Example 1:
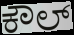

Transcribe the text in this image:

ಕೌಲ್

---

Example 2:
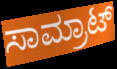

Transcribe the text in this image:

ಸಾಮ್ರಾಟ್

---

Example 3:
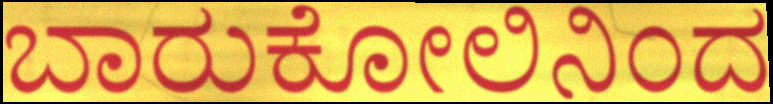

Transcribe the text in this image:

ಬಾರುಕೋಲಿನಿಂದ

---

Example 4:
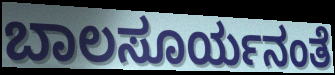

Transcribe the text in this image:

ಬಾಲಸೂರ್ಯನಂತೆ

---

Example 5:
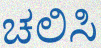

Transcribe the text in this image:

ಚಲಿಸಿ